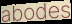
abodes